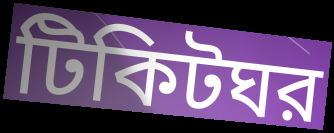
টিকিটঘর